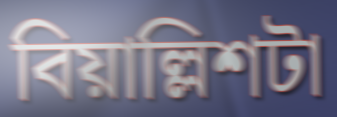
বিয়াল্লিশটা